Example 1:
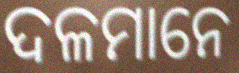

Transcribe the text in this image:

ଦଳମାନେ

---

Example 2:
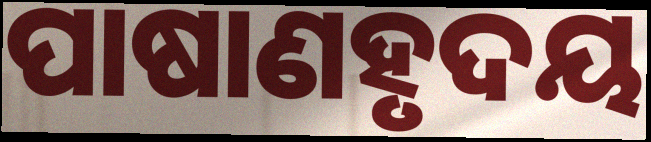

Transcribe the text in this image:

ପାଷାଣହୃଦୟ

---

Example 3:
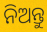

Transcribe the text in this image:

ନିଅନ୍ତୁ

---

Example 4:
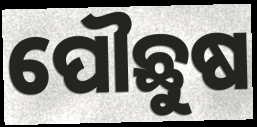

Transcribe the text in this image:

ପୌଛୁଷ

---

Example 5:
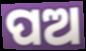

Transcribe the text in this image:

ପଅ